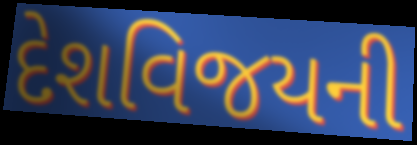
દેશવિજયની